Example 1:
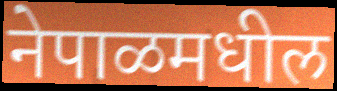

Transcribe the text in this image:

नेपाळमधील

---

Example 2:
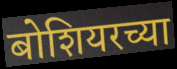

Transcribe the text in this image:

बोशियरच्या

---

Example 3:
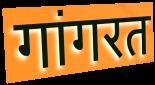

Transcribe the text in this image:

गांगरत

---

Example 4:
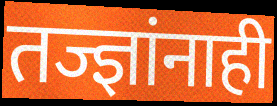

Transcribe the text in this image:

तज्ज्ञांनाही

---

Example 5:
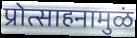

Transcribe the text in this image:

प्रोत्साहनामुळं